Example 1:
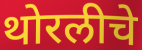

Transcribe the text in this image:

थोरलीचे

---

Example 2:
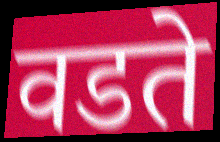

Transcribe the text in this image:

वडते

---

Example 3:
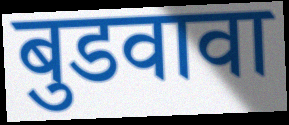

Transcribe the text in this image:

बुडवावा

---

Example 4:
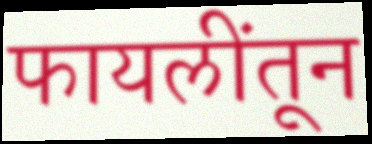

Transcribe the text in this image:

फायलींतून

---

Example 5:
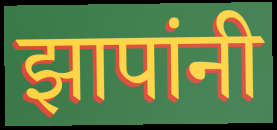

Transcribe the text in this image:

झापांनी